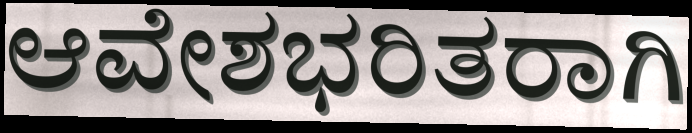
ಆವೇಶಭರಿತರಾಗಿ